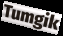
Tumgik